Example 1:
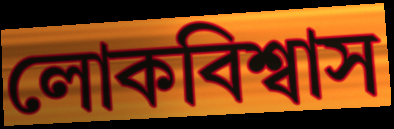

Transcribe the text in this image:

লোকবিশ্বাস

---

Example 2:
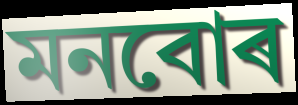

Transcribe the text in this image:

মনবোৰ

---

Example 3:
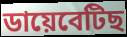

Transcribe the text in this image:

ডায়েবেটিছ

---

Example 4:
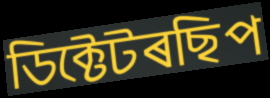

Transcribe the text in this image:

ডিক্টেটৰছিপ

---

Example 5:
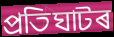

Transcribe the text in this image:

প্ৰতিঘাটৰ